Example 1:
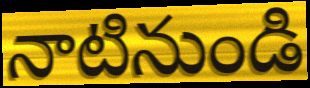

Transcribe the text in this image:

నాటినుండి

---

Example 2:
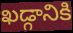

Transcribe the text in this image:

ఖడ్గానికి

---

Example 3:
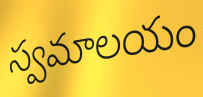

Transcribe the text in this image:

స్వమాలయం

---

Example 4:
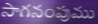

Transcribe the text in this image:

సాగనంపుము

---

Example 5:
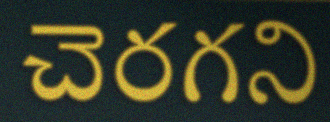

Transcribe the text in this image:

చెరగని